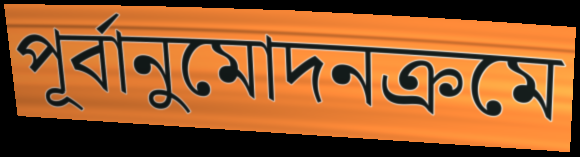
পূর্বানুমোদনক্রমে